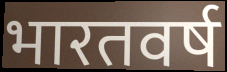
भारतवर्ष